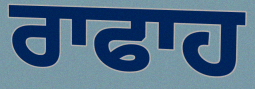
ਰਾਫਾਹ